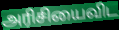
அரிசியைவிட